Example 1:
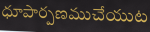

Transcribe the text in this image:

ధూపార్పణముచేయుట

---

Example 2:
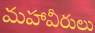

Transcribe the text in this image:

మహావీరులు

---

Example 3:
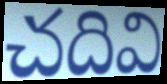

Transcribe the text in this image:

చదివి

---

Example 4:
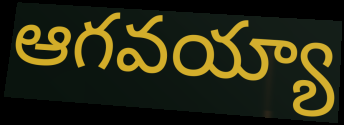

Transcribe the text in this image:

ఆగవయ్యా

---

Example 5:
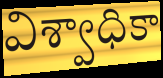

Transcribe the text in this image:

విశ్వాధికా